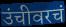
उंचीवरचं